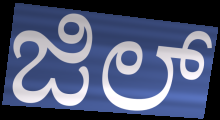
ಜಿಲ್